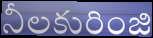
నీలకురింజి